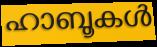
ഹാബൂകൾ